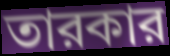
তারকার